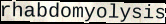
rhabdomyolysis